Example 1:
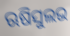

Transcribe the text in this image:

ଋଷିସୁଲଭ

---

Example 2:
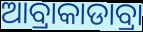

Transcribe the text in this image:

ଆବ୍ରାକାଡାବ୍ରା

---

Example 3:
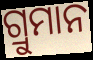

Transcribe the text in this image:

ଗ୍ରୁମାନ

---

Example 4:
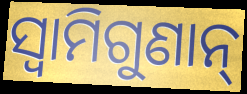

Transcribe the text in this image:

ସ୍ୱାମିଗୁଣାନ୍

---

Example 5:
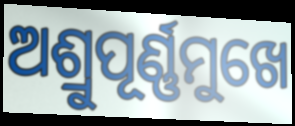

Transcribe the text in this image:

ଅଶ୍ରୁପୂର୍ଣ୍ଣମୁଖେ